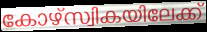
കോഴ്സ്വികയിലേക്ക്